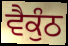
ਵੈਕੁੰਠ